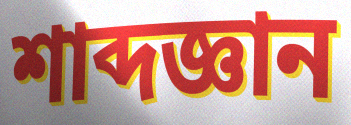
শাব্দজ্ঞান